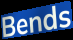
Bends